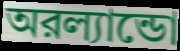
অরল্যান্ডো